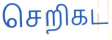
செறிகட